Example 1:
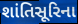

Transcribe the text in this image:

શાંતિસૂરિના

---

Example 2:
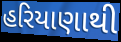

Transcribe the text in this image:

હરિયાણાથી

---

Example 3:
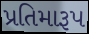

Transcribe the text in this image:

પ્રતિમારૂપ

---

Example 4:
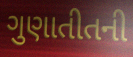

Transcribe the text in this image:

ગુણાતીતની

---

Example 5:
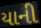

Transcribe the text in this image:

યાની